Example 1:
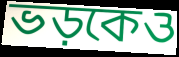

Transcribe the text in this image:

ভড়কেও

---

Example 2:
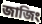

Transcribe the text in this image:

জাজিং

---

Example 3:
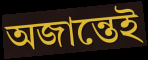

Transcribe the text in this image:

অজান্তেই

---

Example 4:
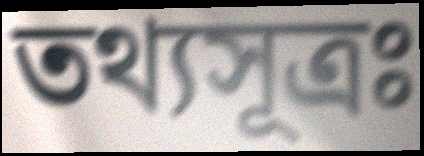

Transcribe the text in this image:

তথ্যসূত্রঃ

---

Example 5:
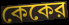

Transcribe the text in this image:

কেকের